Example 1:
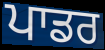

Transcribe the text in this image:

ਪਾਡਰ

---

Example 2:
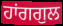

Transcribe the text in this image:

ਹਾਂਗਗੁਲ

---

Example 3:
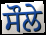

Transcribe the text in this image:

ਸੌਲੇ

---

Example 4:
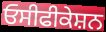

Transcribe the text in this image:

ਓਸੀਫੀਕੇਸ਼ਨ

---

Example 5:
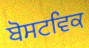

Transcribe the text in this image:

ਬੋਸਟਵਿਕ